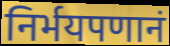
निर्भयपणानं